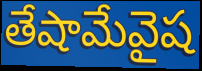
తేషామేవైష